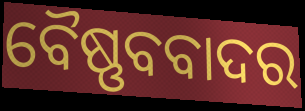
ବୈଷ୍ଣବବାଦର